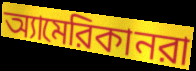
অ্যামেরিকানরা